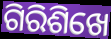
ଗିରିଶିଖେ